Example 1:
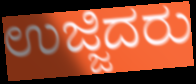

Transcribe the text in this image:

ಉಜ್ಜಿದರು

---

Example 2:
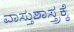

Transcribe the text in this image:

ವಾಸ್ತುಶಾಸ್ತ್ರಕ್ಕೆ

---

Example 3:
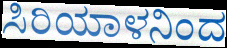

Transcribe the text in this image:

ಸಿರಿಯಾಳನಿಂದ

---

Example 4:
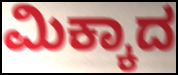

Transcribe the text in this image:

ಮಿಕ್ಕಾದ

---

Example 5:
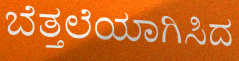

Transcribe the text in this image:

ಬೆತ್ತಲೆಯಾಗಿಸಿದ